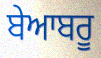
ਬੇਆਬਰੂ